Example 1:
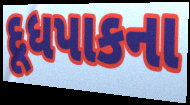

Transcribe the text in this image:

દૂધપાકના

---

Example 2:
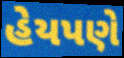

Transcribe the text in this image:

હેયપણે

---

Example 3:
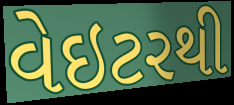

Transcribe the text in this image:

વેઇટરથી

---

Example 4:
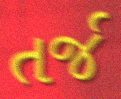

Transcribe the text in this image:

તર્જ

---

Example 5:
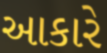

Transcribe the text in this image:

આકારે